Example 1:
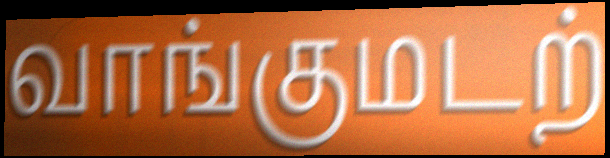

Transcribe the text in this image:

வாங்குமடற்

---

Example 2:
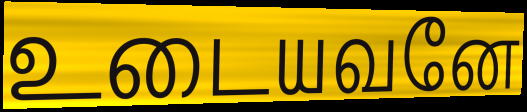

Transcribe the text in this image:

உடையவனே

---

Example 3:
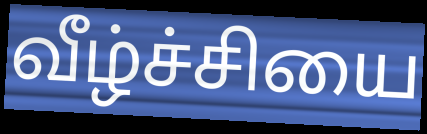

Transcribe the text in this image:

வீழ்ச்சியை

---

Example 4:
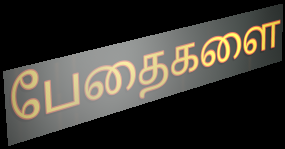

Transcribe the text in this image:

பேதைகளை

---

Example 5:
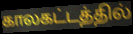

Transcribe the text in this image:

காலகட்டத்தில்